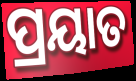
ପ୍ରୟାତ